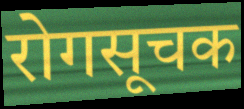
रोगसूचक